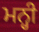
ਮਨ੍ਹੀ